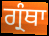
ਗ੍ਰੰਥਾ